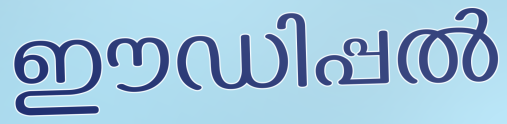
ഈഡിപ്പൽ